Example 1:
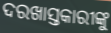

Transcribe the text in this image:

ଦରଖାସ୍ତକାରୀଙ୍କୁ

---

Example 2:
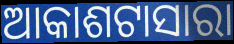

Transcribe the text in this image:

ଆକାଶଟାସାରା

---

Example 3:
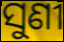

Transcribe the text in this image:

ସୁଣୀ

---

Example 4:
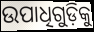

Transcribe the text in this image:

ଉପାଧିଗୁଡ଼ିକୁ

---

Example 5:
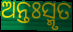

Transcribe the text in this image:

ଅନ୍ତଃସ୍ମୃତ